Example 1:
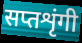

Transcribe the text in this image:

सप्तशृंगी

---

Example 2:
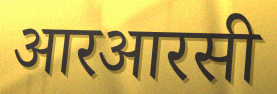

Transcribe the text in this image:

आरआरसी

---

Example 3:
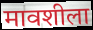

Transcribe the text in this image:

मावशीला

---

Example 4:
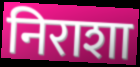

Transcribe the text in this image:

निराशा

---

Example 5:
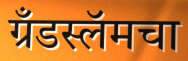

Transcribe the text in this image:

ग्रँडस्लॅमचा